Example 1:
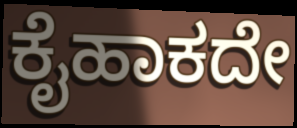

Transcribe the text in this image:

ಕೈಹಾಕದೇ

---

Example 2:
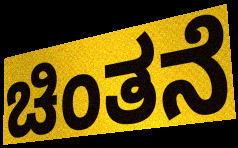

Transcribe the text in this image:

ಚಿಂತನೆ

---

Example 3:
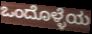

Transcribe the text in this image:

ಒಂದೊಳ್ಳೆಯ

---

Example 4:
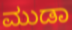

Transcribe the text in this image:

ಮುಡಾ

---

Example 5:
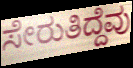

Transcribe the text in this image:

ಸೇರುತಿದ್ದೆವು